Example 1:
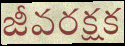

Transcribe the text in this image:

జీవరక్షక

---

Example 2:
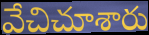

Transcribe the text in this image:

వేచిచూశారు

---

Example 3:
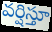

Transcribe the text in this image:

వర్షిస్తూ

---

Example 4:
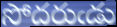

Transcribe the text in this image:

సోదరుఁడు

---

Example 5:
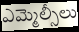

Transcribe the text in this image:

ఎమ్మెల్సీలు